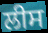
ਲੀਸ